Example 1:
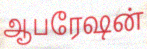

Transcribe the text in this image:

ஆபரேஷன்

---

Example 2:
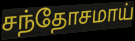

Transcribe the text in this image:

சந்தோசமாய்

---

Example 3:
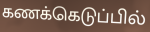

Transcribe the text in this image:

கணக்கெடுப்பில்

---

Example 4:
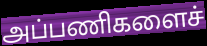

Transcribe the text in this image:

அப்பணிகளைச்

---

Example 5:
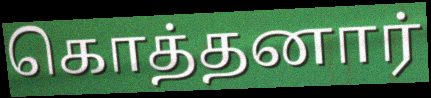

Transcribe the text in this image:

கொத்தனார்